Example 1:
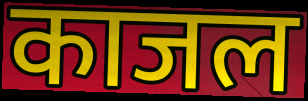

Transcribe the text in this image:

काजल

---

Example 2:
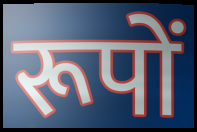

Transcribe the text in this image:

रूपों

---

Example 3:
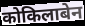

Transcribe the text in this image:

कोकिलाबेन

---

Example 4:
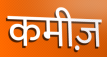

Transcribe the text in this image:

कमीज़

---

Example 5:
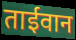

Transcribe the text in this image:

ताईवान